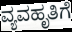
ವ್ಯವಹೃತಿಗೆ